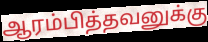
ஆரம்பித்தவனுக்கு